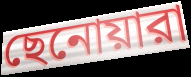
ছেনোয়ারা